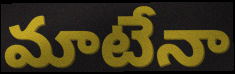
మాటేనా